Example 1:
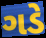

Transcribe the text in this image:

ગડે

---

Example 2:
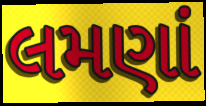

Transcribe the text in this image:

લમણાં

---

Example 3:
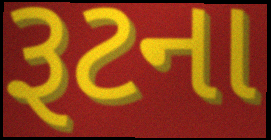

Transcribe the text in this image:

રૂટના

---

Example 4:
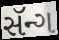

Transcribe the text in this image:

સૅન્ગ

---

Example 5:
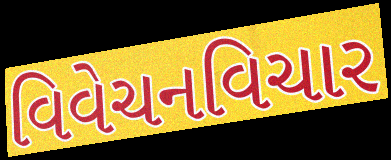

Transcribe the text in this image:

વિવેચનવિચાર